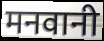
मनवानी